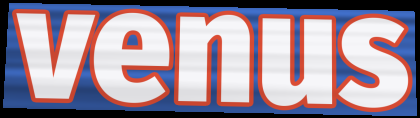
venus